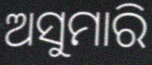
ଅସୁମାରି